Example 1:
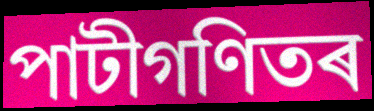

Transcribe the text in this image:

পাটীগণিতৰ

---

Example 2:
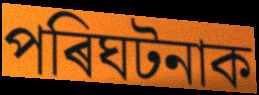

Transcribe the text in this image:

পৰিঘটনাক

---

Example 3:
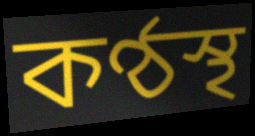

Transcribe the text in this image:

কণ্ঠস্থ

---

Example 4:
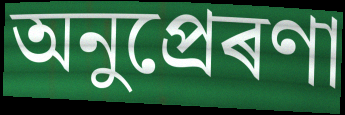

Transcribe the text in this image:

অনুপ্ৰেৰণা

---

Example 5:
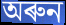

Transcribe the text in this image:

অৰুন